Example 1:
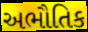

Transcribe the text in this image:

અભૌતિક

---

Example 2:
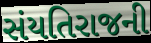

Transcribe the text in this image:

સંયતિરાજની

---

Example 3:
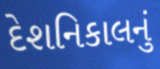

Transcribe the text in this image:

દેશનિકાલનું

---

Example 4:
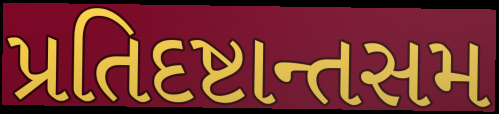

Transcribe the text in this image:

પ્રતિદષ્ટાન્તસમ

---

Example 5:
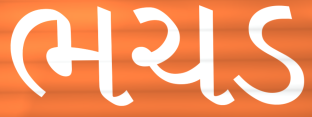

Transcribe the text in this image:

ભચડ